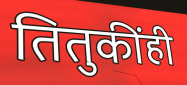
तितुकींही